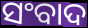
ସଂବାଦ